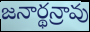
జనార్థన్రావు